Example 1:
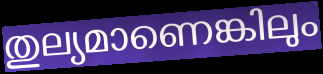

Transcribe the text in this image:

തുല്യമാണെങ്കിലും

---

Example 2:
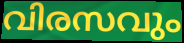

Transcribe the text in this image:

വിരസവും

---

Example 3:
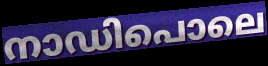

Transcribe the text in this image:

നാഡിപൊലെ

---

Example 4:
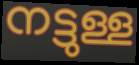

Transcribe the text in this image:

നട്ടുള്ള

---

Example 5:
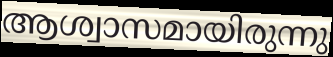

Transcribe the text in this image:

ആശ്വാസമായിരുന്നു